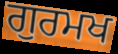
ਗੁਰਮਖ